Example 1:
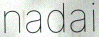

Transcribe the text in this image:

nadai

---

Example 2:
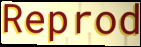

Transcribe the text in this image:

Reprod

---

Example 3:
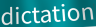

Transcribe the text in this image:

dictation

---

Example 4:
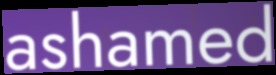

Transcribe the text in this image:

ashamed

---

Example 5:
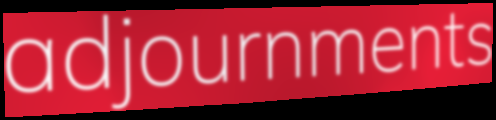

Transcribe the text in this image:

adjournments